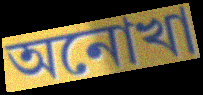
অনোখা